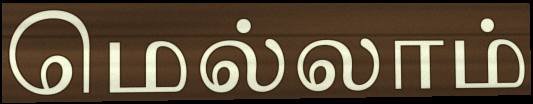
மெல்லாம்